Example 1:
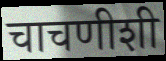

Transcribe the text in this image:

चाचणीशी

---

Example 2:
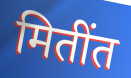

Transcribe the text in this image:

मितींत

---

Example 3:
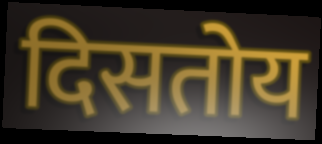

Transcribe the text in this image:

दिसतोय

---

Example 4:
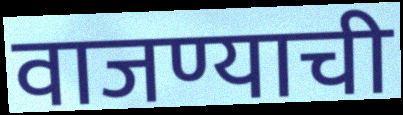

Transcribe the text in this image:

वाजण्याची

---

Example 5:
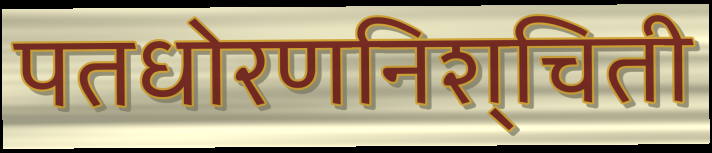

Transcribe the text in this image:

पतधोरणनिश्चिती